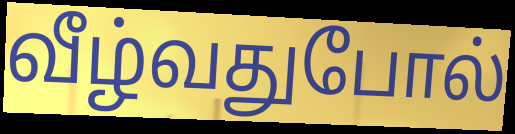
வீழ்வதுபோல்